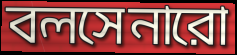
বলসেনারো